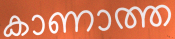
കാണാത്ത